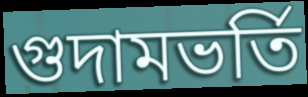
গুদামভর্তি